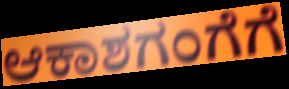
ಆಕಾಶಗಂಗೆಗೆ